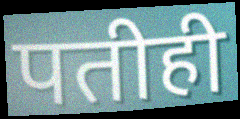
पतीही